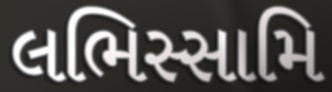
લભિસ્સામિ